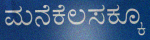
ಮನೆಕೆಲಸಕ್ಕೂ